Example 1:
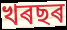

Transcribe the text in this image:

খৰছৰ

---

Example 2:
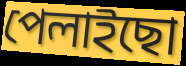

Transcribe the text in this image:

পেলাইছো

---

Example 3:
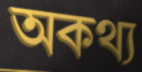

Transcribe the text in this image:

অকথ্য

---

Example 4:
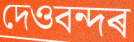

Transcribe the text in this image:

দেওবন্দৰ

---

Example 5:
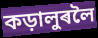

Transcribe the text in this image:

কড়ালুৰলৈ